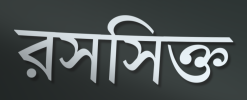
রসসিক্ত